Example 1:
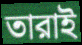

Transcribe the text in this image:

তারাই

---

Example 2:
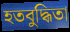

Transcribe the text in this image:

হতবুদ্ধিতা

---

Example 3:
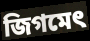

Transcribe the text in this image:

জিগমেৎ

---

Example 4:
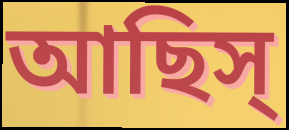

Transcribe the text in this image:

আছিস্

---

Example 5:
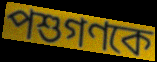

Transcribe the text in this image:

পশুগণকে